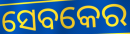
ସେବକେର